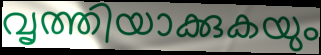
വൃത്തിയാക്കുകയും